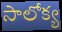
సాలోక్య